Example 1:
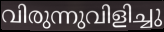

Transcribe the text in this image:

വിരുന്നുവിളിച്ചു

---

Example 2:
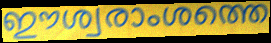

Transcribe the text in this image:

ഈശ്വരാംശത്തെ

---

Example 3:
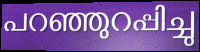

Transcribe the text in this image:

പറഞ്ഞുറപ്പിച്ചു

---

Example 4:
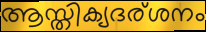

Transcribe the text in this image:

ആസ്തിക്യദര്ശനം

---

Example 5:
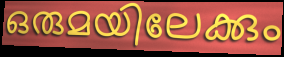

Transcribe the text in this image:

ഒരുമയിലേക്കും